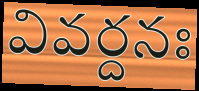
వివర్దనః